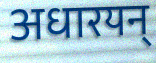
अधारयन्